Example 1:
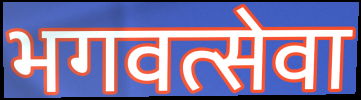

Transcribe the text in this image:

भगवत्सेवा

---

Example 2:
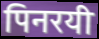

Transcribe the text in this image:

पिनरयी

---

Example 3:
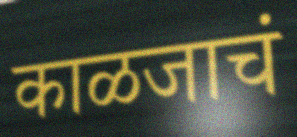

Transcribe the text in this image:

काळजाचं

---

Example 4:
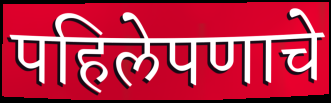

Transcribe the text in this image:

पहिलेपणाचे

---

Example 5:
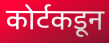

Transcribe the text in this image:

कोर्टकडून